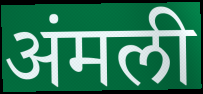
अंमली